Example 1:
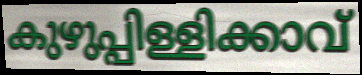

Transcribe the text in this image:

കുഴുപ്പിള്ളിക്കാവ്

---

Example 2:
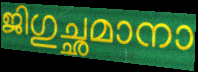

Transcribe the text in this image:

ജിഗുച്ഛമാനാ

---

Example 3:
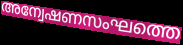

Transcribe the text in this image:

അന്വേഷണസംഘത്തെ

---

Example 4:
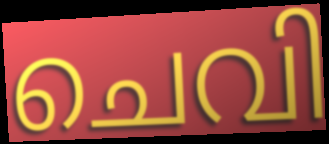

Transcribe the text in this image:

ചെവി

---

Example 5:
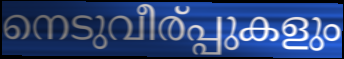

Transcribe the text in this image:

നെടുവീര്പ്പുകളും